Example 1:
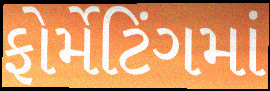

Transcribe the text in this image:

ફોર્મેટિંગમાં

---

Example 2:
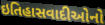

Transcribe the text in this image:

ઇતિહાસવાદીઓનો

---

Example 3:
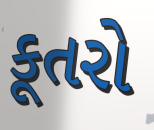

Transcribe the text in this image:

કૂતરો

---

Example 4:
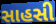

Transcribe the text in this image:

સાહસી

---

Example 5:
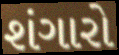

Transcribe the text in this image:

શંગારો